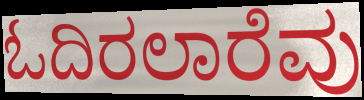
ಓದಿರಲಾರೆವು